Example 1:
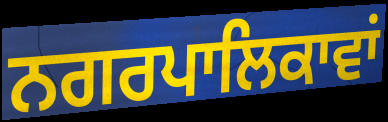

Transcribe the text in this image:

ਨਗਰਪਾਲਿਕਾਵਾਂ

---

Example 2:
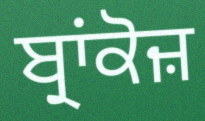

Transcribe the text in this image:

ਬ੍ਰਾਂਕੋਜ਼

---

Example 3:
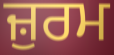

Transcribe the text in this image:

ਜ਼ੁਰਮ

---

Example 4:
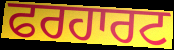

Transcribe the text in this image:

ਫਰਹਾਰਟ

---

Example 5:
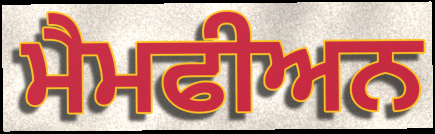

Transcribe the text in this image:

ਮੈਮਫੀਅਨ